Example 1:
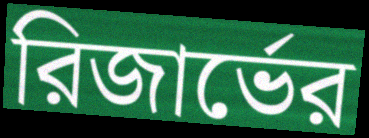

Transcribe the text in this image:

রিজার্ভের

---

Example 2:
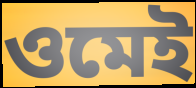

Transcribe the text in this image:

ওমেই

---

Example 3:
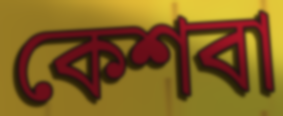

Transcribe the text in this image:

কেশবা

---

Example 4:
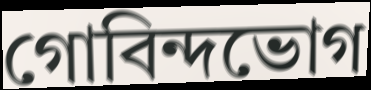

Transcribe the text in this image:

গোবিন্দভোগ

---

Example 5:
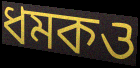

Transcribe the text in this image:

ধমকও